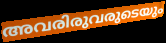
അവരിരുവരുടെയും